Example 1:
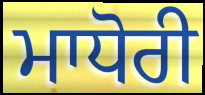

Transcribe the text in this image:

ਮਾਧੋਰੀ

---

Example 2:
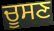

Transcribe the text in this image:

ਚੂਸਣ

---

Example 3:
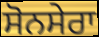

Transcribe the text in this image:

ਸੋਨਸੇਰਾ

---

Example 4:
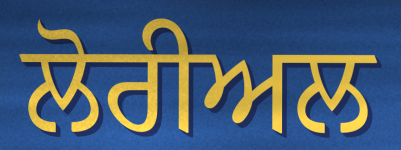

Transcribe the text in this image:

ਲੋਰੀਅਲ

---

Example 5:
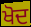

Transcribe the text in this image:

ਖੋਦ